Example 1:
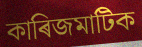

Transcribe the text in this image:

কাৰিজমাটিক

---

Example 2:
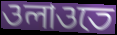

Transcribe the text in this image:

ওলাওতে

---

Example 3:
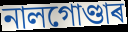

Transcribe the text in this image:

নালগোণ্ডাৰ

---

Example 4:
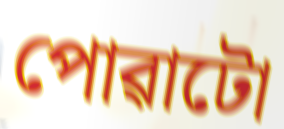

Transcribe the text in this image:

পোৱাটো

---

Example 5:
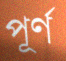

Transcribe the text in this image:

পূৰ্ণ